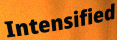
Intensified